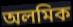
অলমিক